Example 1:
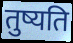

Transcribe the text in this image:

तुष्यति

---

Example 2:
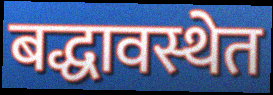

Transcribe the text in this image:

बद्धावस्थेत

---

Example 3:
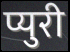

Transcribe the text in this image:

प्युरी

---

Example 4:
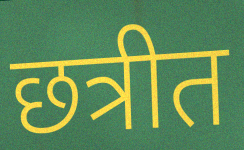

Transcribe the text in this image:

छत्रीत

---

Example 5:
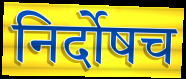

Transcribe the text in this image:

निर्दोषच